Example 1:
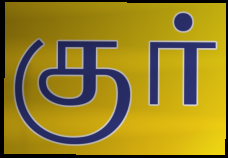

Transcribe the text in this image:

குர்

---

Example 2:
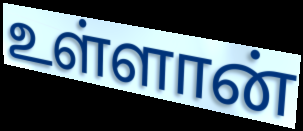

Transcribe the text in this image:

உள்ளான்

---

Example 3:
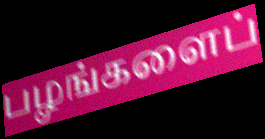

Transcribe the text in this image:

பழங்களைப்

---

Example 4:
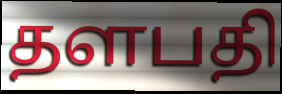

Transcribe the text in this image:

தளபதி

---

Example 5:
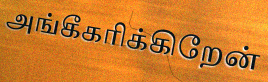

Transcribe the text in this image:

அங்கீகரிக்கிறேன்